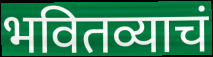
भवितव्याचं